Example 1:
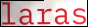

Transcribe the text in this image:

laras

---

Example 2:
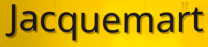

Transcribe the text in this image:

Jacquemart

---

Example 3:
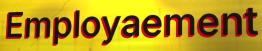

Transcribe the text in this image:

Employaement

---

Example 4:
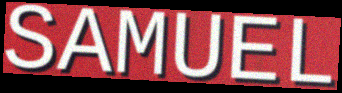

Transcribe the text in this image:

SAMUEL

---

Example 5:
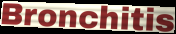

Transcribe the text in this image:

Bronchitis